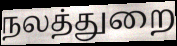
நலத்துறை